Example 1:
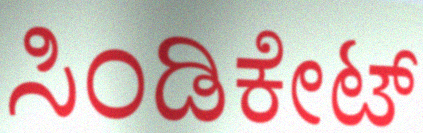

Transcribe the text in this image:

ಸಿಂಡಿಕೇಟ್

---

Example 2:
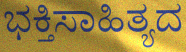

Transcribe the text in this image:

ಭಕ್ತಿಸಾಹಿತ್ಯದ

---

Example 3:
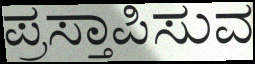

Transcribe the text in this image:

ಪ್ರಸ್ತಾಪಿಸುವ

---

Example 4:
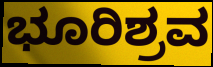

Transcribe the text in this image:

ಭೂರಿಶ್ರವ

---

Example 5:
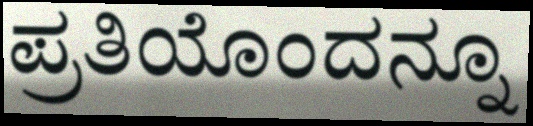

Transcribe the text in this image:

ಪ್ರತಿಯೊಂದನ್ನೂ